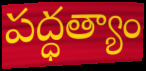
పద్ధత్యాం